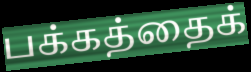
பக்கத்தைக்